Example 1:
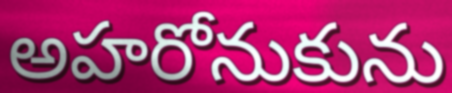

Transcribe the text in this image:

అహరోనుకును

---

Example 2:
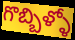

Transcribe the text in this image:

గొబ్బిళ్ళో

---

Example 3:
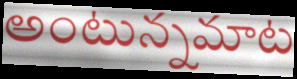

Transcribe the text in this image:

అంటున్నమాట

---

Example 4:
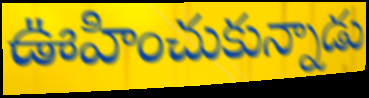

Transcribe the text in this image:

ఊహించుకున్నాడు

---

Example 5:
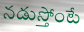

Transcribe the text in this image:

నడుస్తోంటే